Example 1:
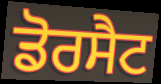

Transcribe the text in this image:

ਡੋਰਸੈਟ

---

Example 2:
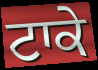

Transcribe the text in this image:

ਟਾਕੇ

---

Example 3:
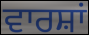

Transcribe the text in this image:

ਵਾਰਸ਼ਾਂ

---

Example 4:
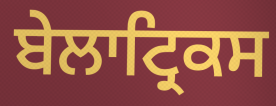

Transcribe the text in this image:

ਬੇਲਾਟ੍ਰਿਕਸ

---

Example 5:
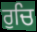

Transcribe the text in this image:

ਰੁਚਿ